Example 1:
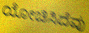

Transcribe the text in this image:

ಯೋಚಿಸಿದೆವು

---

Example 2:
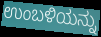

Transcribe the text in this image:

ಉಂಬಳಿಯನ್ನು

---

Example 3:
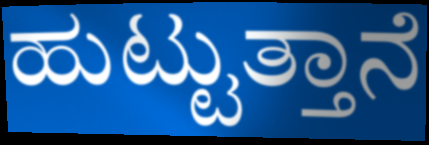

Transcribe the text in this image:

ಹುಟ್ಟುತ್ತಾನೆ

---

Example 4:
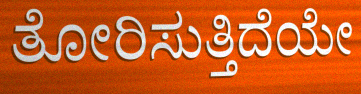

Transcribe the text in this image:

ತೋರಿಸುತ್ತಿದೆಯೇ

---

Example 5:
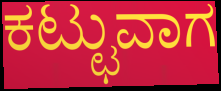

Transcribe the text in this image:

ಕಟ್ಟುವಾಗ